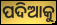
ପଦିଆକୁ